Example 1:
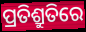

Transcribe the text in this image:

ପ୍ରତିଶ୍ରୁତିରେ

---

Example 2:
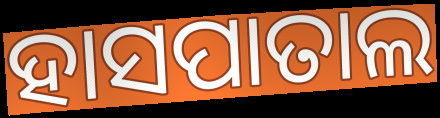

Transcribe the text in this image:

ହାସପାତାଲ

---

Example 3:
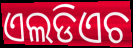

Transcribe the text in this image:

ଏଲଡିଏଚ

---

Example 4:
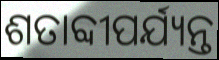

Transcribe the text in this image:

ଶତାବ୍ଦୀପର୍ଯ୍ୟନ୍ତ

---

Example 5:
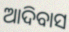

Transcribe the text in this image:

ଆଦିବାସ